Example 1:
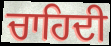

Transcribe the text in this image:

ਚਾਹਿਦੀ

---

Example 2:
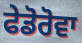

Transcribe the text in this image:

ਫੇਡੋਰੋਵਾ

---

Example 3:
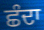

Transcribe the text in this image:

ਛੰਦਾ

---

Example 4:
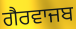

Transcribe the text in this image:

ਗੈਰਵਾਜਬ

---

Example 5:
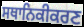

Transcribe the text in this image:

ਸਥਾਨਿਕੀਕਰਣ